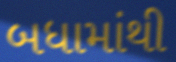
બધામાંથી